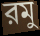
রমু